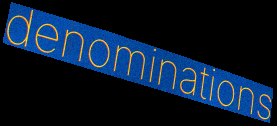
denominations